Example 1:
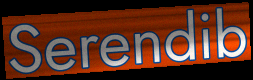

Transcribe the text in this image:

Serendib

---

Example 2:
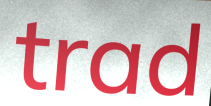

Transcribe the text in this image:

trad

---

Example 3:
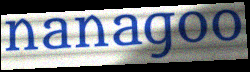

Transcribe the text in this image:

nanagoo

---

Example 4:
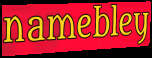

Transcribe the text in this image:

namebley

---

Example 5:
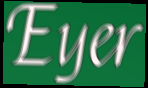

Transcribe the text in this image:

Eyer